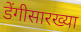
डेंगीसारख्या